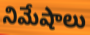
నిమేషాలు